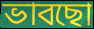
ভাবছো